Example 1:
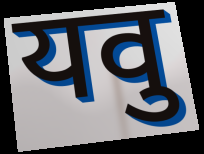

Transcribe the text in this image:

यवु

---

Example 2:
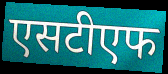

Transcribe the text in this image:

एसटीएफ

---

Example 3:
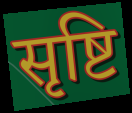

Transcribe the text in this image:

सृष्टि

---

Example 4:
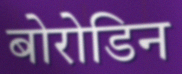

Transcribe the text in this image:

बोरोडिन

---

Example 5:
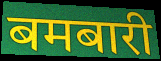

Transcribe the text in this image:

बमबारी